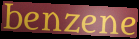
benzene